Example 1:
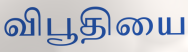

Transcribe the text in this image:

விபூதியை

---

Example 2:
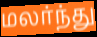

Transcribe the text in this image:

மலர்ந்து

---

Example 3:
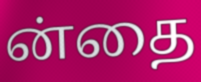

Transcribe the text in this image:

ன்தை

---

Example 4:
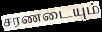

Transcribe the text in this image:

சரணடையும்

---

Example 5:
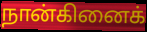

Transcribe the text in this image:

நான்கினைக்